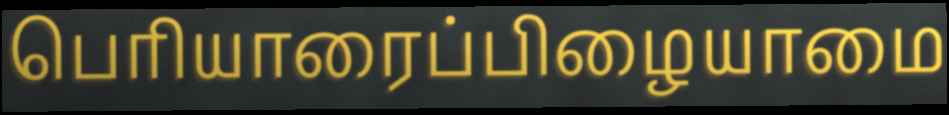
பெரியாரைப்பிழையாமை